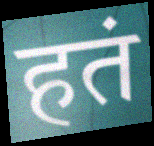
हतं